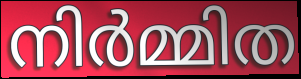
നിർമ്മിത